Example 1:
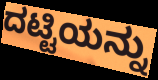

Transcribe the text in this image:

ದಟ್ಟಿಯನ್ನು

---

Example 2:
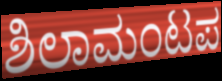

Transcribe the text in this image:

ಶಿಲಾಮಂಟಪ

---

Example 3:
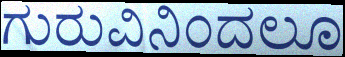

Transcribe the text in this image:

ಗುರುವಿನಿಂದಲೂ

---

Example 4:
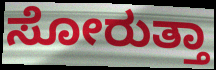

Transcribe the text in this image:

ಸೋರುತ್ತಾ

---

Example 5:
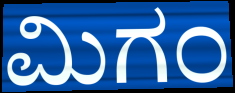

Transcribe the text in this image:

ಮಿಗಂ